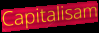
Capitalisam